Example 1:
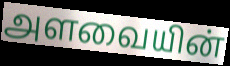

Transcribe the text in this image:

அளவையின்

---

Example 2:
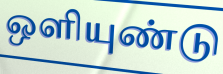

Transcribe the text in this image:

ஒளியுண்டு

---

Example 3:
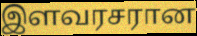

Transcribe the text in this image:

இளவரசரான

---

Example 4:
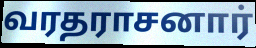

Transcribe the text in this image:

வரதராசனார்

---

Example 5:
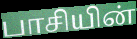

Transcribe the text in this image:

பாசியின்